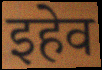
इहेव